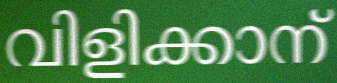
വിളിക്കാന്